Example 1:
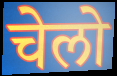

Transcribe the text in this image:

चेलो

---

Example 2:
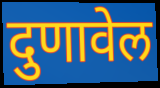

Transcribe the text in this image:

दुणावेल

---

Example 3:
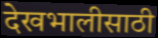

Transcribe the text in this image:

देखभालीसाठी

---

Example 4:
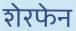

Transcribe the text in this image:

शेरफेन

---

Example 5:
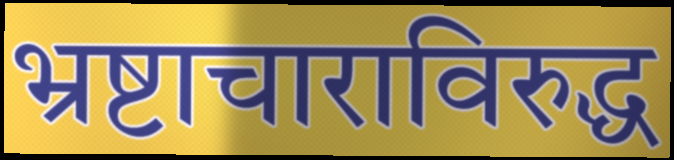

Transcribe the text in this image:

भ्रष्टाचाराविरुद्ध